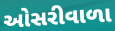
ઓસરીવાળા